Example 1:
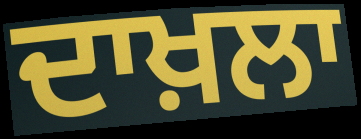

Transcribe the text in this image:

ਦਾਖ਼ਲਾ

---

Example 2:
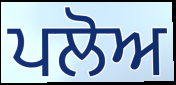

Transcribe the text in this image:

ਪਲੋਅ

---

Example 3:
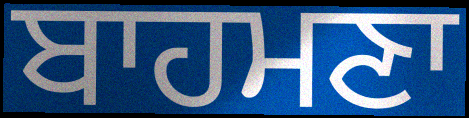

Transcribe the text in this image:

ਬਾਹਮਣਾ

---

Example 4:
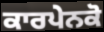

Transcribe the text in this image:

ਕਾਰਪੇਨਕੋ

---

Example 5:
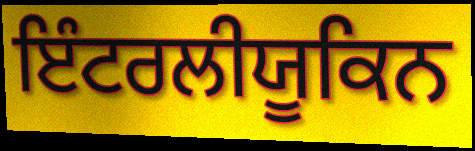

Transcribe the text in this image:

ਇੰਟਰਲੀਯੂਕਿਨ